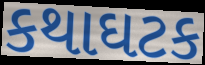
કથાઘટક